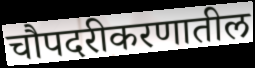
चौपदरीकरणातील